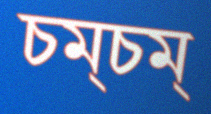
চম্চম্